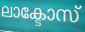
ലാക്ടോസ്